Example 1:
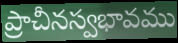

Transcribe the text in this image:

ప్రాచీనస్వభావము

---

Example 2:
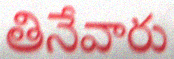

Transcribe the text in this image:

తినేవారు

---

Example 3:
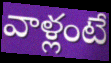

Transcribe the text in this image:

వాళ్లంటే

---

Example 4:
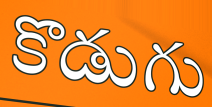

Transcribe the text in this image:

కొడుగు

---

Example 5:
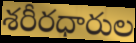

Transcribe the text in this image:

శరీరధారుల